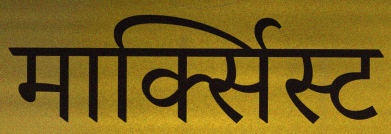
मार्क्सिस्ट